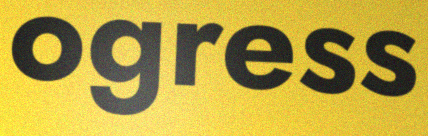
ogress